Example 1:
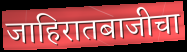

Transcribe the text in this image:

जाहिरातबाजीचा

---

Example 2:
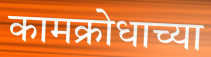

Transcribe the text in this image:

कामक्रोधाच्या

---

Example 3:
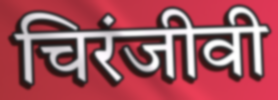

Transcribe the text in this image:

चिरंजीवी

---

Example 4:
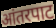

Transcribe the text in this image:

आंतरपाट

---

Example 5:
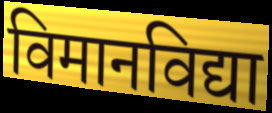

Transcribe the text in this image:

विमानविद्या